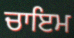
ਚਾਇਮ